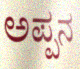
ಅಪ್ಪನ